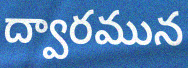
ద్వారమున